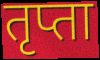
तृप्ता